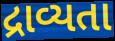
દ્રાવ્યતા